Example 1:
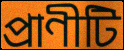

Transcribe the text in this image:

প্রাণীটি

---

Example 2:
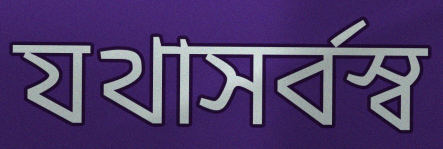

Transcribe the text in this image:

যথাসর্বস্ব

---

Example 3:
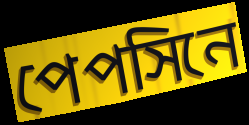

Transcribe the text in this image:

পেপসিনে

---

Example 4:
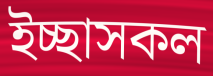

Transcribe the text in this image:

ইচ্ছাসকল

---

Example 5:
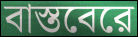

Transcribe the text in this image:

বাস্তবেরে